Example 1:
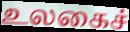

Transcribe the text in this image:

உலகைச்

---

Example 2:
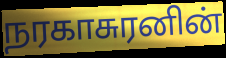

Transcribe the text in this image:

நரகாசுரனின்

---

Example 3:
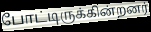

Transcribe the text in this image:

போட்டிருக்கின்றனர்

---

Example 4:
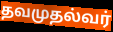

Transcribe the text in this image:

தவமுதல்வர்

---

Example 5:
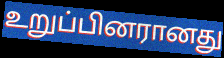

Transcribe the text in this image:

உறுப்பினரானது